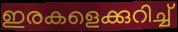
ഇരകളെക്കുറിച്ച്